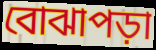
বোঝাপড়া